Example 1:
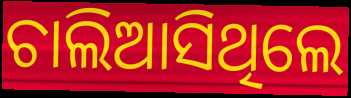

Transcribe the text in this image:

ଚାଲିଆସିଥିଲେ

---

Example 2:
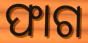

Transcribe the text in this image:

ଫାଗ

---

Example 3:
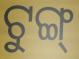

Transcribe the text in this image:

ଟୁଙ୍ଗ୍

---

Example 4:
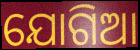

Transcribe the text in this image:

ଯୋଗିଆ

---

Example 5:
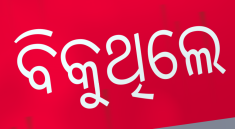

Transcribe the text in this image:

ବିକୁଥିଲେ